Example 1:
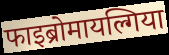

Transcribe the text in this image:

फाइब्रोमायल्गिया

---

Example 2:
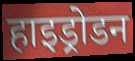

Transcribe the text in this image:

हाइड्रोडन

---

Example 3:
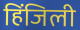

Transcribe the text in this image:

हिंजिली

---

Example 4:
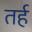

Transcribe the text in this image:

तर्ह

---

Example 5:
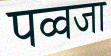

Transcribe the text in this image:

पव्वजा